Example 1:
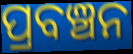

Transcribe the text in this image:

ପ୍ରବଞ୍ଚନ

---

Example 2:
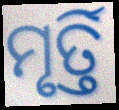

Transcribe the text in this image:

ମୃର୍ତ୍ତି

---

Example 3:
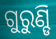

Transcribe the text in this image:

ଗୁରୁଣ୍ଡି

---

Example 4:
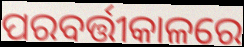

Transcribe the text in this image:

ପରବର୍ତ୍ତୀକାଳରେ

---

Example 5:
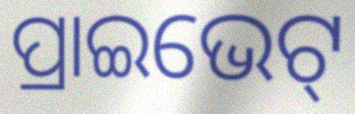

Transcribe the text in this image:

ପ୍ରାଇଭେଟ୍